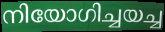
നിയോഗിച്ചയച്ച